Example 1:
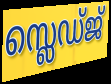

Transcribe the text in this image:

സ്ലെഡ്ജ്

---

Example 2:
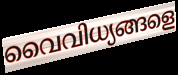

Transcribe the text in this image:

വൈവിധ്യങ്ങളെ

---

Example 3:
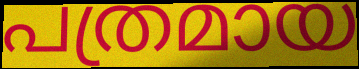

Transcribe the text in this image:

പത്രമായ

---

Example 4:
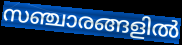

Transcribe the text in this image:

സഞ്ചാരങ്ങളിൽ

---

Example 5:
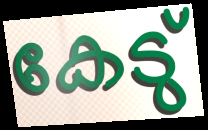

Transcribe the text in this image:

കേടു്